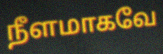
நீளமாகவே